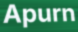
Apurn